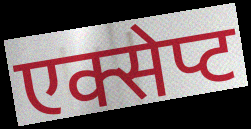
एक्सेप्ट